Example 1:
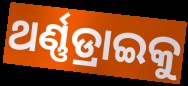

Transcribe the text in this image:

ଥର୍ଣ୍ଣଡ୍ରାଇକୁ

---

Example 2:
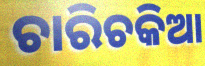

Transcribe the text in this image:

ଚାରିଚକିଆ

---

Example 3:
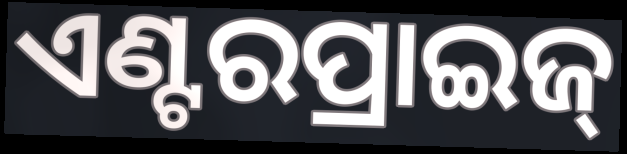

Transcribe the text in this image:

ଏଣ୍ଟରପ୍ରାଇଜ୍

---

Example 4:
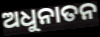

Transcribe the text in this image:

ଅଧୁନାତନ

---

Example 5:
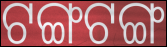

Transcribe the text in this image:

ଟଙ୍ଗଟଙ୍ଗ